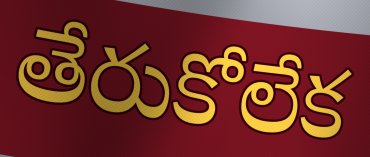
తేరుకోలేక